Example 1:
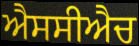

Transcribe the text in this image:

ਐਸਸੀਐਚ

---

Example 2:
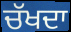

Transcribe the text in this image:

ਚੱਖਦਾ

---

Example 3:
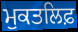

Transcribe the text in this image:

ਮੁਕਤਲਿਫ਼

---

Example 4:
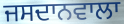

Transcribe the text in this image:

ਜਸਦਾਨਵਾਲਾ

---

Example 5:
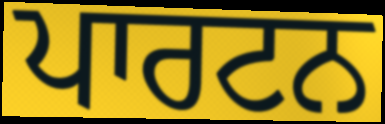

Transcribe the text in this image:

ਪਾਰਟਨ